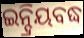
ଇନ୍ଦ୍ରିୟବଦ୍ଧ